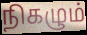
நிகழும்